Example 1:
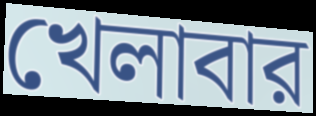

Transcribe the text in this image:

খেলাবার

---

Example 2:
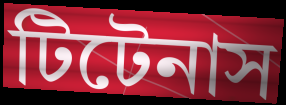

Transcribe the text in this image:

টিটেনাস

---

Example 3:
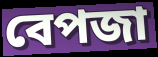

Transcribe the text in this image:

বেপজা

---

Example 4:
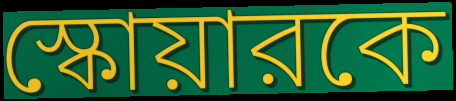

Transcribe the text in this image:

স্কোয়ারকে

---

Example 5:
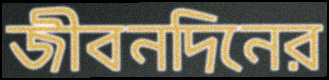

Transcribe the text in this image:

জীবনদিনের